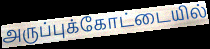
அருப்புக்கோட்டையில்